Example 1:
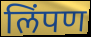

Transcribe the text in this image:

लिंपण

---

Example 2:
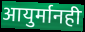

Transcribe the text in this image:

आयुर्मानही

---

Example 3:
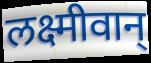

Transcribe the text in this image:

लक्ष्मीवान्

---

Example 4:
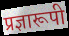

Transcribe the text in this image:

प्रज्ञारूपी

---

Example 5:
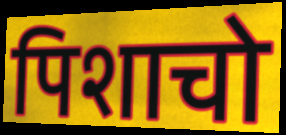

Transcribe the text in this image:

पिशाचो